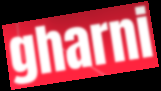
gharni